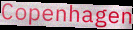
Copenhagen